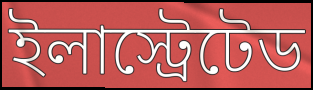
ইলাস্ট্রেটেড